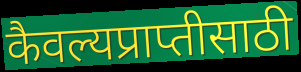
कैवल्यप्राप्तीसाठी